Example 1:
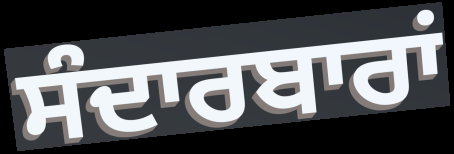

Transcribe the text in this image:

ਸੰਦਾਰਬਾਰਾਂ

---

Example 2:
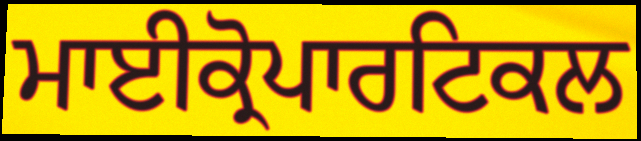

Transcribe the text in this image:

ਮਾਈਕ੍ਰੋਪਾਰਟਿਕਲ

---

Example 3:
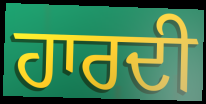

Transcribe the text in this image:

ਹਾਰਦੀ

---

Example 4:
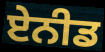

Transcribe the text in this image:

ਏਨੀਡ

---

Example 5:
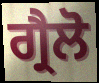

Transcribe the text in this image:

ਗ੍ਰੈਲੋ